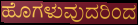
ಹೊಗಳುವುದರಿಂದ